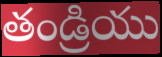
తండ్రియు